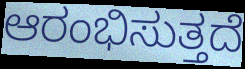
ಆರಂಭಿಸುತ್ತದೆ